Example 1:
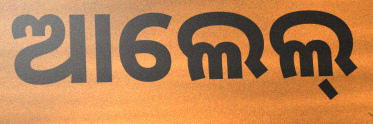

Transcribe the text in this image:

ଆଲେଲ୍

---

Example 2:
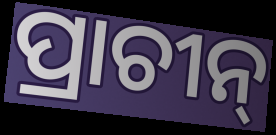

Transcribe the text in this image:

ପ୍ରାଚୀନ୍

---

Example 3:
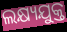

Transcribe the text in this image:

ଲକ୍ଷ୍ୟଯୁକ୍ତ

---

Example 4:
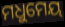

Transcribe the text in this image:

ମଧୁମେୟ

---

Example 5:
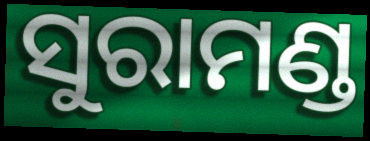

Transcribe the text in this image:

ସୁରାମଣ୍ଡ